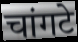
चांगटे